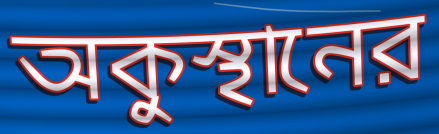
অকুস্থানের